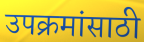
उपक्रमांसाठी